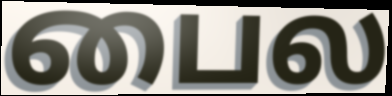
பைல